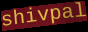
shivpal